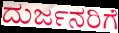
ದುರ್ಜನರಿಗೆ